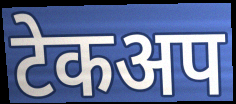
टेकअप